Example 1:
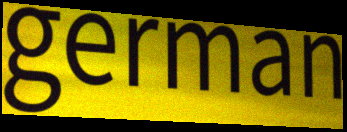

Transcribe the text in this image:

german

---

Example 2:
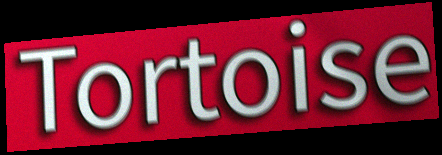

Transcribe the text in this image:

Tortoise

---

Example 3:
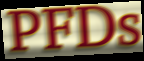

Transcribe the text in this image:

PFDs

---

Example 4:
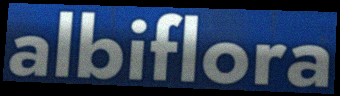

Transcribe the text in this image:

albiflora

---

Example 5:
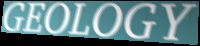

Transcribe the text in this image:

GEOLOGY